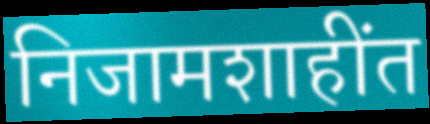
निजामशाहींत